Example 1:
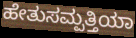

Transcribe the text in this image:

ಹೇತುಸಮ್ಪತ್ತಿಯಾ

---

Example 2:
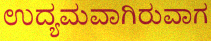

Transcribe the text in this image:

ಉದ್ಯಮವಾಗಿರುವಾಗ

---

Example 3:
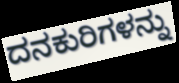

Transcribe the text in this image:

ದನಕುರಿಗಳನ್ನು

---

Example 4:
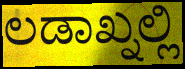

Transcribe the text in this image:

ಲಡಾಖ್ನಲ್ಲಿ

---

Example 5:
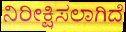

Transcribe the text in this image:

ನಿರೀಕ್ಷಿಸಲಾಗಿದೆ